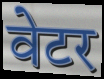
वेटर